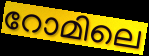
റോമിലെ